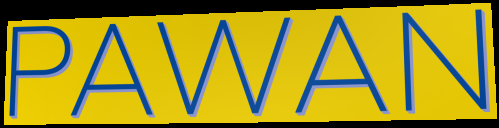
PAWAN